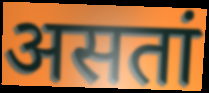
असतां